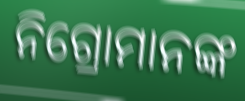
ନିଗ୍ରୋମାନଙ୍କ